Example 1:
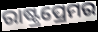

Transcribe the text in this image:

ରାଷ୍ଟ୍ରପ୍ରେମର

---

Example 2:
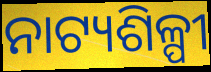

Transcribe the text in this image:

ନାଟ୍ୟଶିଳ୍ପୀ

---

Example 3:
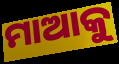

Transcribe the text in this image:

ମାଆକୁ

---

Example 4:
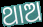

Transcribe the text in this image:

ଥାଅ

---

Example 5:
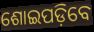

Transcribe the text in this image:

ଶୋଇପଡ଼ିବେ